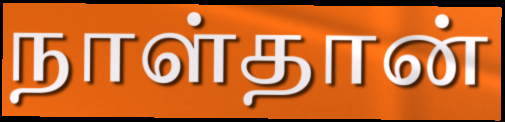
நாள்தான்